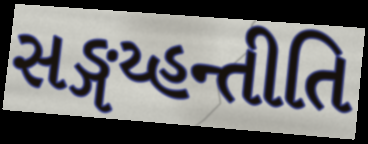
સઙ્ગય્હન્તીતિ